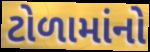
ટોળામાંનો